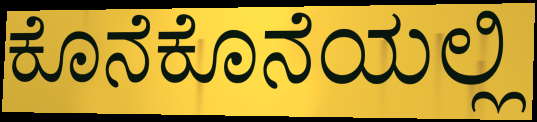
ಕೊನೆಕೊನೆಯಲ್ಲಿ